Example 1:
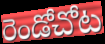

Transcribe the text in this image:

రెండోచోట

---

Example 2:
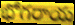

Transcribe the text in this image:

భోగరాయ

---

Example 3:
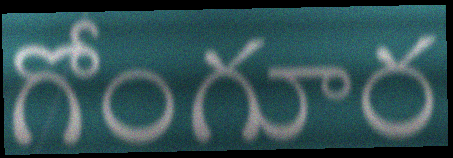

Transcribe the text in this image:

గోంగూర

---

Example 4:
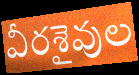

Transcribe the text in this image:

వీరశైవుల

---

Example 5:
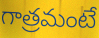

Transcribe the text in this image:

గాత్రమంటే